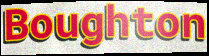
Boughton